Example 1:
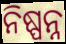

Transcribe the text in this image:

ନିଷ୍ପନ୍ନ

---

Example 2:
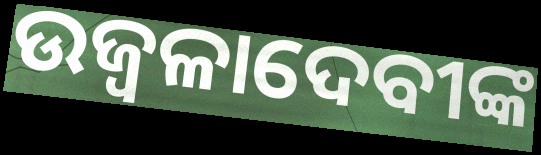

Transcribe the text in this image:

ଉଜ୍ୱଳାଦେବୀଙ୍କ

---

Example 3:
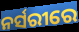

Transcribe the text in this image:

ନର୍ସରୀରେ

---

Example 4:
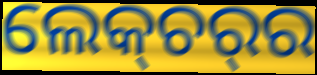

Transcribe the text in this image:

ଲେକ୍‌ଚର୍‌ର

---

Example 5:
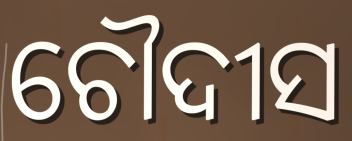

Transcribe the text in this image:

ଚୌଦୀସ